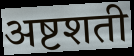
अष्टशती